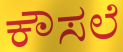
ಕೌಸಲೆ